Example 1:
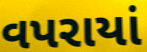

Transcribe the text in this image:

વપરાયાં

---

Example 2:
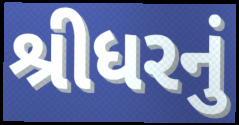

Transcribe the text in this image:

શ્રીધરનું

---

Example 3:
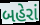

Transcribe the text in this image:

બહેરાં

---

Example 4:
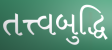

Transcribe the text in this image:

તત્ત્વબુદ્ધિ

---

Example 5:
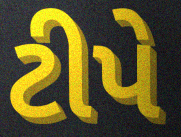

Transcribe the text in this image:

ટીપે